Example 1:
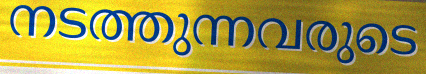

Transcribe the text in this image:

നടത്തുന്നവരുടെ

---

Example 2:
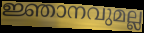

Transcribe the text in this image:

ജ്ഞാനവുമല്ല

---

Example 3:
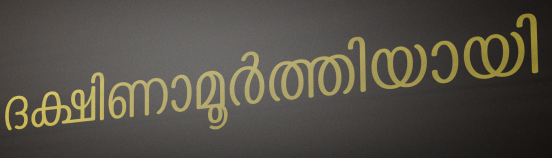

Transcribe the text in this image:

ദക്ഷിണാമൂർത്തിയായി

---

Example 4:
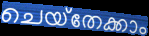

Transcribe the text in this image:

ചെയ്‌തേക്കാം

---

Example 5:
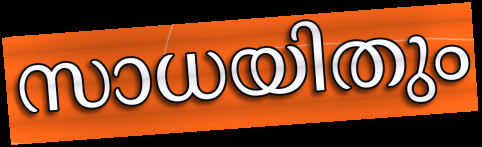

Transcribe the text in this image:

സാധയിതും